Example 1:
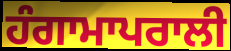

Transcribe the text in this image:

ਹੰਗਾਮਾਪਰਾਲੀ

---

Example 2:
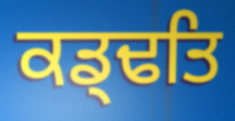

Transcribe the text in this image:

ਕਡ੍ਢਤਿ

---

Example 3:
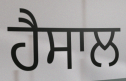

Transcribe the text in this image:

ਹੈਸਾਲ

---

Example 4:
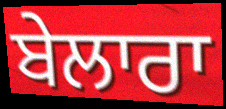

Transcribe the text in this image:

ਬੇਲਾਰਾ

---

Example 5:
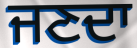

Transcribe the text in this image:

ਜਣਦਾ